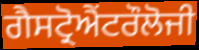
ਗੈਸਟ੍ਰੋਐਂਟਰੌਲੋਜੀ